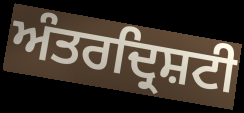
ਅੰਤਰਦ੍ਰਿਸ਼ਟੀ